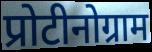
प्रोटीनोग्राम